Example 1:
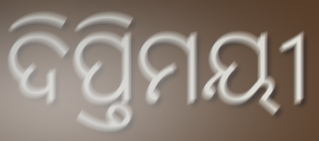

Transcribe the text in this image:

ଦିପ୍ତିମୟୀ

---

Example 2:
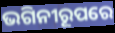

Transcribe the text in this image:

ଭଗିନୀରୂପରେ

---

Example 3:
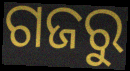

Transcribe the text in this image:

ଗଜରୁ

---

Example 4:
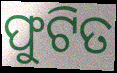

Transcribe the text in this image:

ଫୁଟିତ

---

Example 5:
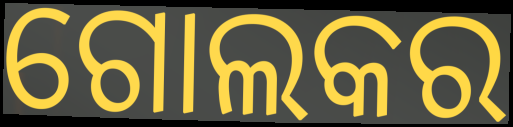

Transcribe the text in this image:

ଗୋଲକର